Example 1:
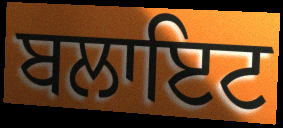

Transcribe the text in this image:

ਬਲਾਇਟ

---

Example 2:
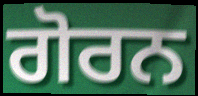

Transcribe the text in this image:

ਗੋਰਨ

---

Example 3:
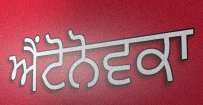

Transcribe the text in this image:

ਐਂਟੋਨੋਵਕਾ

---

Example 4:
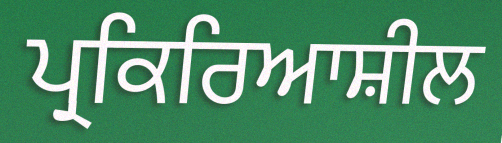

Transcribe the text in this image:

ਪ੍ਰਕਿਰਿਆਸ਼ੀਲ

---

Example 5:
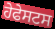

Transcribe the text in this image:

ਹੇਫੇਸਟਸ